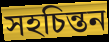
সহচিন্তন